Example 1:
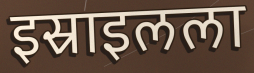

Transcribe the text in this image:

इस्राइलला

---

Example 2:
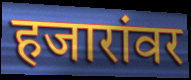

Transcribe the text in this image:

हजारांवर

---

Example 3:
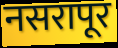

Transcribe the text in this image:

नसरापूर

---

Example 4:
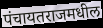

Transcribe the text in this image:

पंचायतराजमधील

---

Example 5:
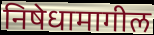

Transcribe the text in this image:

निषेधामागील